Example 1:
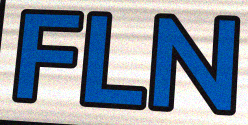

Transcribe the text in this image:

FLN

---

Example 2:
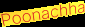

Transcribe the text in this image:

Poonachha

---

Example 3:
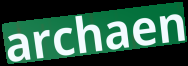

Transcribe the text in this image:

archaen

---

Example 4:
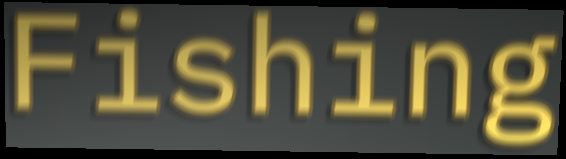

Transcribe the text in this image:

Fishing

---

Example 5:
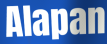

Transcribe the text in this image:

Alapan